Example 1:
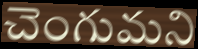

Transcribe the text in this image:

చెంగుమని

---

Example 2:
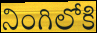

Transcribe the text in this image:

నింగిలోకి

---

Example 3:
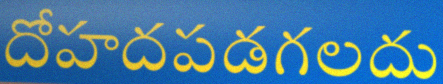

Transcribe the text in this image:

దోహదపడగలదు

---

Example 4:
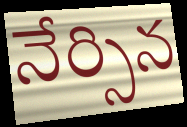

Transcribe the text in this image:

నేర్సిన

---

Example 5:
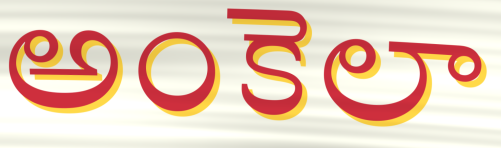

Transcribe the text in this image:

అంకెలా